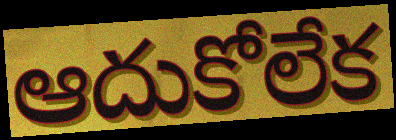
ఆదుకోలేక